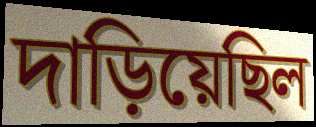
দাড়িয়েছিল